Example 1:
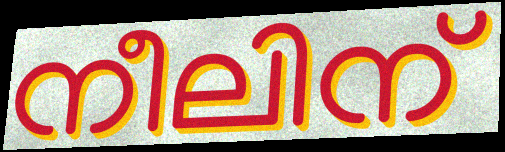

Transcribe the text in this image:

നീലിന്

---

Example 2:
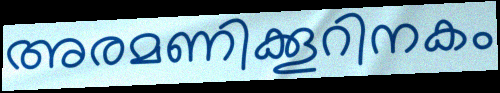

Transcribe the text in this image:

അരമണിക്കൂറിനകം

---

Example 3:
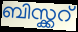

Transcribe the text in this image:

ബിസ്ക്കറ്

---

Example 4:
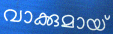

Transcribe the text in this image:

വാക്കുമായ്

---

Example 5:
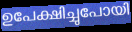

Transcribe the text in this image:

ഉപേക്ഷിച്ചുപോയി